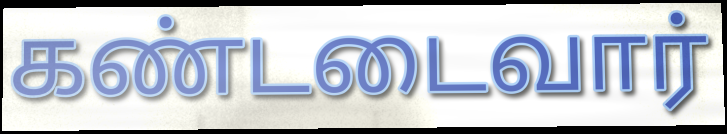
கண்டடைவார்